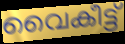
വൈകീട്ട്